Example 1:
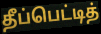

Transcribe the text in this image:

தீப்பெட்டித்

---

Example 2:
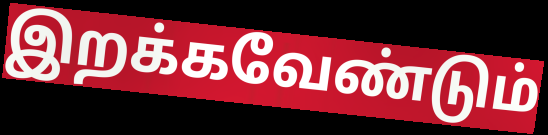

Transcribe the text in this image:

இறக்கவேண்டும்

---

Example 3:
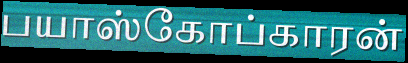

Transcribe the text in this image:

பயாஸ்கோப்காரன்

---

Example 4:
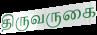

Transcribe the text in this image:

திருவருகை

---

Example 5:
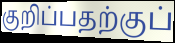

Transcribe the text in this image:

குறிப்பதற்குப்